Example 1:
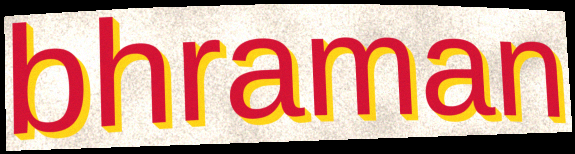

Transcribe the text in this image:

bhraman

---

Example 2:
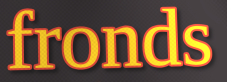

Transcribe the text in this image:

fronds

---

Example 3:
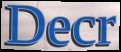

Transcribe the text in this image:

Decr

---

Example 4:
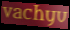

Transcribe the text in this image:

vachyu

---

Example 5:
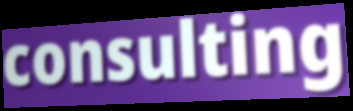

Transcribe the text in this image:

consulting